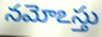
నమోఽస్తు